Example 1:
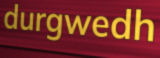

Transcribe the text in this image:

durgwedh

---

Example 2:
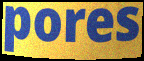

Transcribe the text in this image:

pores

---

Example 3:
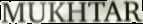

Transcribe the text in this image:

MUKHTAR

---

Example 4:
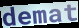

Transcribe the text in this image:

demat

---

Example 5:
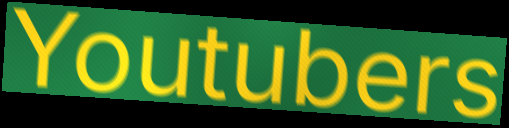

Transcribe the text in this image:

Youtubers